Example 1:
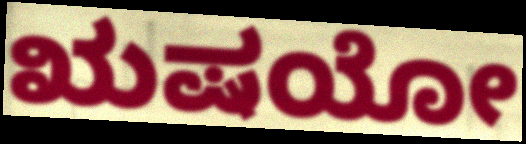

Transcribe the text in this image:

ಋಷಯೋ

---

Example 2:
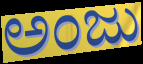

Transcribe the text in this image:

ಅಂಜು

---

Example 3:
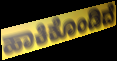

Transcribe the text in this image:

ಹಾಕಿಕೊಂಡಿದೆ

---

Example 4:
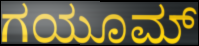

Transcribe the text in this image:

ಗಯೂಮ್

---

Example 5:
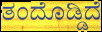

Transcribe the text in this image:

ತಂದೊಡ್ಡಿದೆ